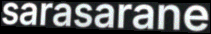
sarasarane